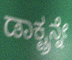
ಡಾಕ್ಟ್ರನ್ನೇ